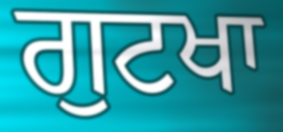
ਗੁਟਖਾ